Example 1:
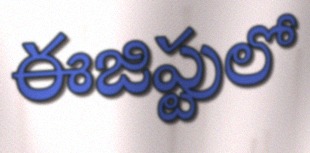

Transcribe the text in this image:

ఈజిప్టులో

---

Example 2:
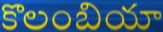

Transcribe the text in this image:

కొలంబియా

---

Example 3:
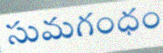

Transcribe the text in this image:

సుమగంధం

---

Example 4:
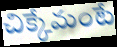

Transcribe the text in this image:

చిక్కేమంటే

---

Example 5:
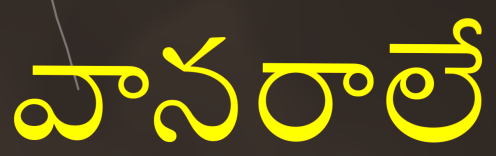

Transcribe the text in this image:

వానరాలే